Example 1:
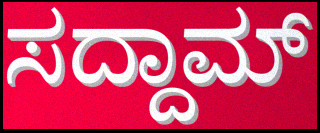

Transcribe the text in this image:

ಸದ್ದಾಮ್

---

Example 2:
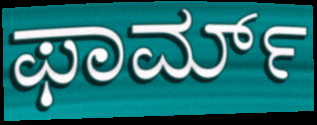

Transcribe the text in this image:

ಫಾರ್ಮ್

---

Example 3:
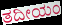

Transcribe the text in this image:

ತದೀಯಂ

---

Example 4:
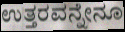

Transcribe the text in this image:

ಉತ್ತರವನ್ನೇನೂ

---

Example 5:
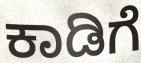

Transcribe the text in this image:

ಕಾಡಿಗೆ